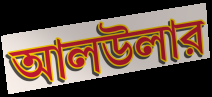
আলউলার